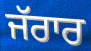
ਜੱਰਾਰ